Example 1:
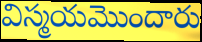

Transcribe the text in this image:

విస్మయమొందారు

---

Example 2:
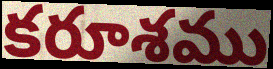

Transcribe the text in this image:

కరూశము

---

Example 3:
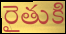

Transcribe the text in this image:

రైతుకి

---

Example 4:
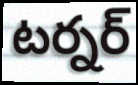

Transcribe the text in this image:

టర్నర్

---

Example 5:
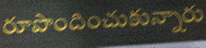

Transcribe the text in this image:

రూపొందించుకున్నారు